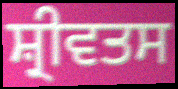
ਸ਼੍ਰੀਵਤਸ